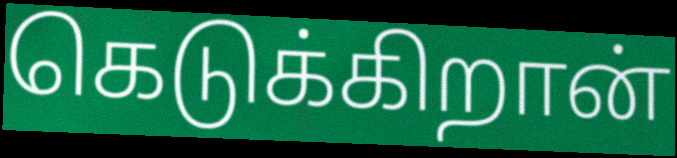
கெடுக்கிறான்